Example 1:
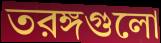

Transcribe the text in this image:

তরঙ্গগুলো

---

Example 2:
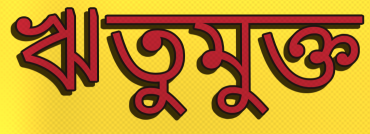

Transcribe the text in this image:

ঋতুমুক্ত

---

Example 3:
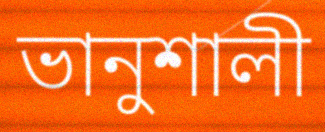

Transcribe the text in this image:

ভানুশালী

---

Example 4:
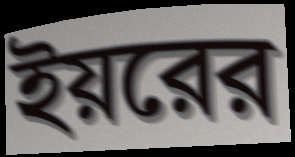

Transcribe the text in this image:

ইয়রের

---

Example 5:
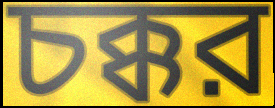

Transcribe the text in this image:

চক্কর